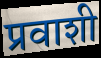
प्रवाशी